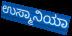
ಉಸ್ಮಾನಿಯಾ